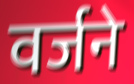
वर्जने